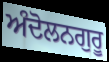
ਅੰਦੋਲਨਗੁਰੂ